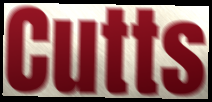
Cutts